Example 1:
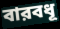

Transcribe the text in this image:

বারবধূ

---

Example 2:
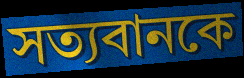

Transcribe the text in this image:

সত্যবানকে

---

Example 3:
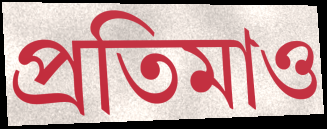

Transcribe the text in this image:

প্রতিমাও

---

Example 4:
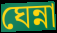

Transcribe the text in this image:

ঘেন্না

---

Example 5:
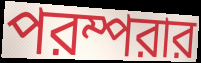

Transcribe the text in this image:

পরম্পরার